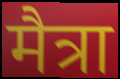
मैत्रा